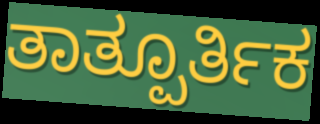
ತಾತ್ಪೂರ್ತಿಕ